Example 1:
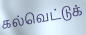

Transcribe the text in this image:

கல்வெட்டுக்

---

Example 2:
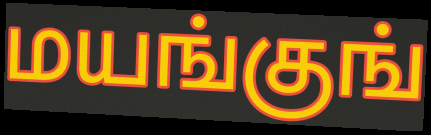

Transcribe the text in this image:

மயங்குங்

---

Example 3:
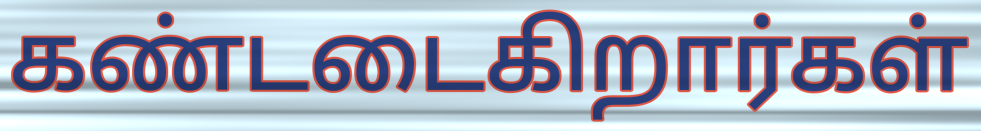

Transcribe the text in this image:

கண்டடைகிறார்கள்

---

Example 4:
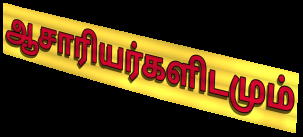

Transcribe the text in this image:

ஆசாரியர்களிடமும்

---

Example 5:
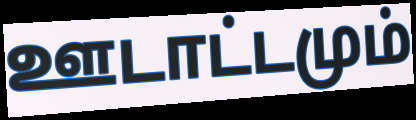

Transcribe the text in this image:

ஊடாட்டமும்